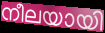
നീലയായി